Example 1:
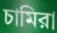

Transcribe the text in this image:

চামিরা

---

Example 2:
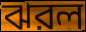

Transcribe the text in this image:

ঝরল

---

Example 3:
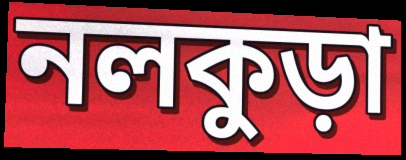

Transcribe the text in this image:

নলকুড়া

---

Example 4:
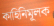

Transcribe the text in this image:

কাহিনিমূলক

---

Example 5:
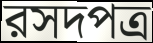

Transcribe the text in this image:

রসদপত্র